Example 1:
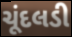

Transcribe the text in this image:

ચૂંદલડી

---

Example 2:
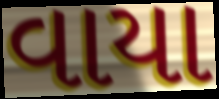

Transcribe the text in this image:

વાયા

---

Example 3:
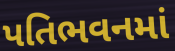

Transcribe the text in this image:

પતિભવનમાં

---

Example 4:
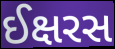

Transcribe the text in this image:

ઈક્ષરસ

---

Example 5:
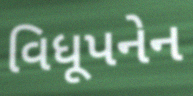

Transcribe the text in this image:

વિધૂપનેન